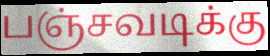
பஞ்சவடிக்கு